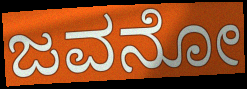
ಜವನೋ